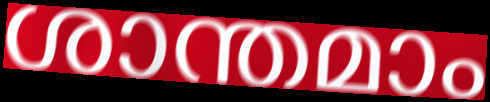
ശാന്തമാം